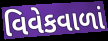
વિવેકવાળાં